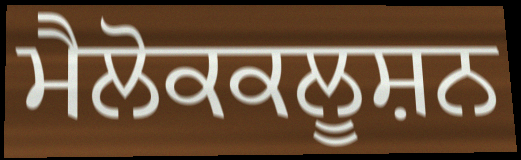
ਮੈਲੋਕਕਲੂਸ਼ਨ